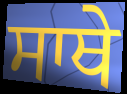
ਸਾਥੇ